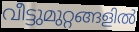
വീട്ടുമുറ്റങ്ങളിൽ